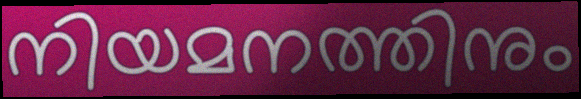
നിയമനത്തിനും